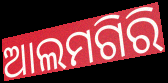
ଆଲମଗିରି